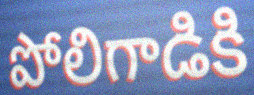
పోలిగాడికి